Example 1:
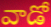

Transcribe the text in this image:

వాడో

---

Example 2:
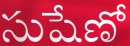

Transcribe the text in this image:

సుషేణో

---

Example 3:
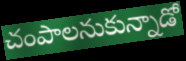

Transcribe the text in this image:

చంపాలనుకున్నాడో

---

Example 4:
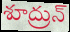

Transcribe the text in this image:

శూద్రున్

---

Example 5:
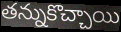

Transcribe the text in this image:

తన్నుకొచ్చాయి